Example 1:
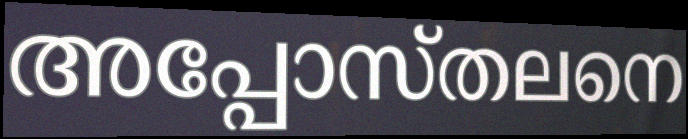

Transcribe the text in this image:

അപ്പോസ്തലനെ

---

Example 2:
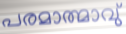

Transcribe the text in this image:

പരമാത്മാവു്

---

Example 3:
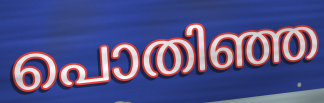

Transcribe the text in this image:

പൊതിഞ്ഞ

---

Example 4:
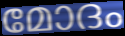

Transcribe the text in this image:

മോദം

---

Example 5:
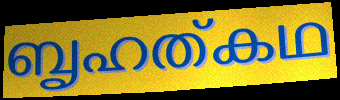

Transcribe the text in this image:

ബൃഹത്കഥ